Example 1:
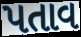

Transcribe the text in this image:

પતાવ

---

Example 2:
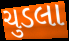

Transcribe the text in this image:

ચુડલા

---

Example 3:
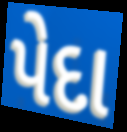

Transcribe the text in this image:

પેદા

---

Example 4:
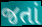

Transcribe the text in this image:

જતાં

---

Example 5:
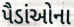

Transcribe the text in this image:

પૈડાંઓના